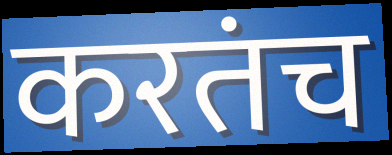
करतंच